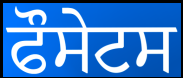
ਫੌਸੇਟਸ